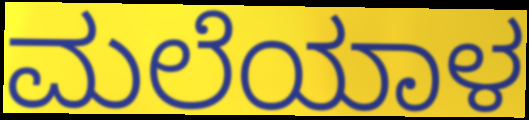
ಮಲೆಯಾಳ